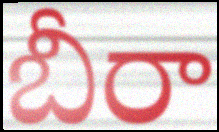
బీరా